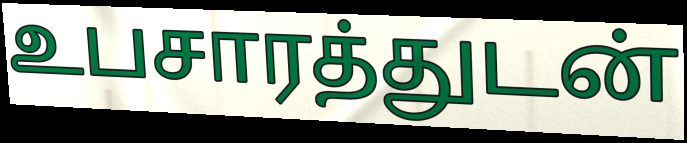
உபசாரத்துடன்